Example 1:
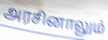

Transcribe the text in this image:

அரசினாலும்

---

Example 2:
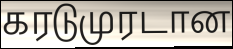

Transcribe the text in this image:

கரடுமுரடான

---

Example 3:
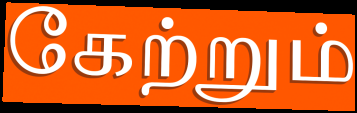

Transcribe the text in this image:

கேற்றும்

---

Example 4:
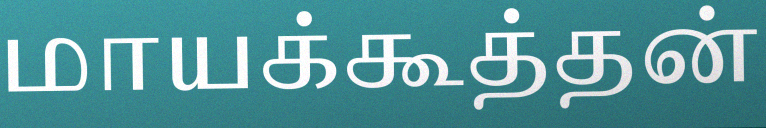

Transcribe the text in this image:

மாயக்கூத்தன்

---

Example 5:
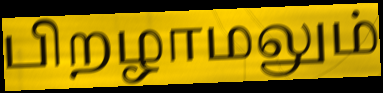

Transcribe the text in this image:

பிறழாமலும்